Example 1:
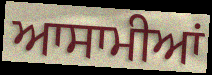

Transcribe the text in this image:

ਆਸਾਮੀਆਂ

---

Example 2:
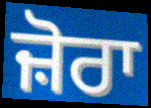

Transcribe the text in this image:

ਜ਼ੋਰਾ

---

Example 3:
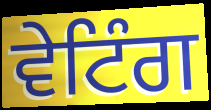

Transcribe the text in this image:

ਵੇਟਿੰਗ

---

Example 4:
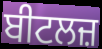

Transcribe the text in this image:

ਬੀਟਲਜ਼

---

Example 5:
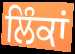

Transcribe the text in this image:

ਲਿੰਕਾਂ